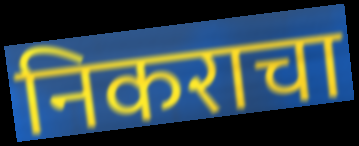
निकराचा